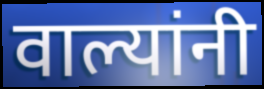
वाल्यांनी